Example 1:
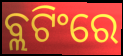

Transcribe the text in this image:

ବ୍ଲଟିଂରେ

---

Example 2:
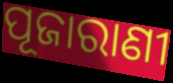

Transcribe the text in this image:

ପୂଜାରାଣୀ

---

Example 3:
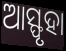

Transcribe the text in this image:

ଆସ୍ଫୃହା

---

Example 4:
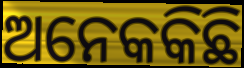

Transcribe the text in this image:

ଅନେକକିଛି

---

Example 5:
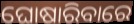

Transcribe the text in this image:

ଘୋଷାରିବାରେ